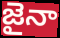
జైనా